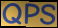
QPS